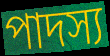
পাদস্য